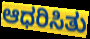
ಆಧರಿಸಿತು